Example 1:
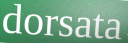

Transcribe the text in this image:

dorsata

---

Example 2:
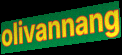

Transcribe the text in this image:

olivannang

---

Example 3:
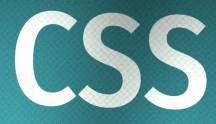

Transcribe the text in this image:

CSS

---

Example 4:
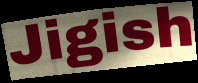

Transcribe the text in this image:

Jigish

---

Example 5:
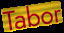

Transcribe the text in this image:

Tabor